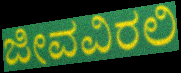
ಜೀವವಿರಲಿ